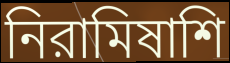
নিরামিষাশি